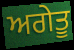
ਅਗੇਤੂ